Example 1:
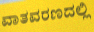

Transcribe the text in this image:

ವಾತವರಣದಲ್ಲಿ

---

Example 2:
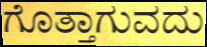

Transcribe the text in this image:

ಗೊತ್ತಾಗುವದು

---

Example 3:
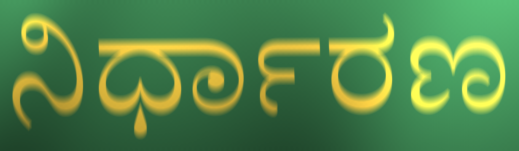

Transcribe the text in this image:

ನಿರ್ಧಾರಣ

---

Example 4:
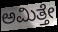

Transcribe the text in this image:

ಅಮಿತ್ತೇ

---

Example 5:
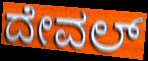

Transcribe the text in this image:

ದೇವಲ್